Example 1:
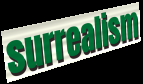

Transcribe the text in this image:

surrealism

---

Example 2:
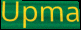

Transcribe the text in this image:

Upma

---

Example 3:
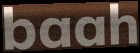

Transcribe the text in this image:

baah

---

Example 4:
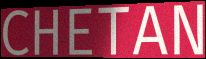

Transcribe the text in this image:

CHETAN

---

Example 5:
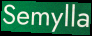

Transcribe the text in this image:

Semylla